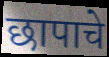
छापाचे